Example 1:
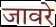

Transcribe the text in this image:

जावरे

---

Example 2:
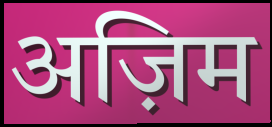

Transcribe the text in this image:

अज़िम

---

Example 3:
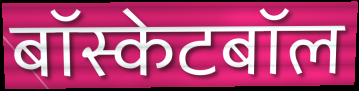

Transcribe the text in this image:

बॉस्केटबॉल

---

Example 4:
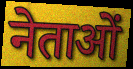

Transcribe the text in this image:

नेताओं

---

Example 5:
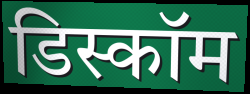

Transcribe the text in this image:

डिस्कॉम